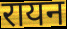
रायन